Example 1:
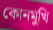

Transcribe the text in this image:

কোনমুখি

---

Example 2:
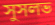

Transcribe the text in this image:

সুসলভ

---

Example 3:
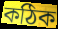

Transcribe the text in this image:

কঠিক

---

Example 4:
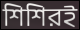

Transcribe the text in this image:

শিশিরই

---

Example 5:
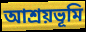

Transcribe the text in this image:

আশ্রয়ভূমি